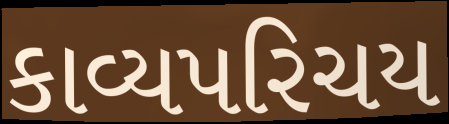
કાવ્યપરિચય